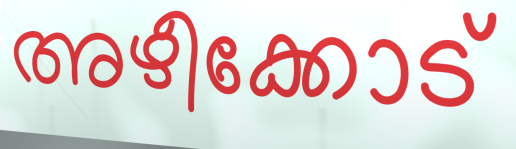
അഴീക്കോട്